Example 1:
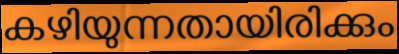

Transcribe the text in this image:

കഴിയുന്നതായിരിക്കും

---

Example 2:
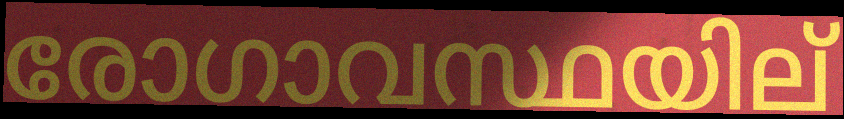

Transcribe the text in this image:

രോഗാവസ്ഥയില്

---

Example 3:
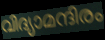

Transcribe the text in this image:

വിദ്യാമന്ദിരം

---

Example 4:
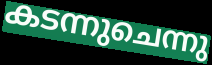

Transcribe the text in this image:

കടന്നുചെന്നു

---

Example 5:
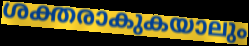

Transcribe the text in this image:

ശക്തരാകുകയാലും